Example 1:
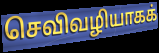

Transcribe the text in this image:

செவிவழியாகக்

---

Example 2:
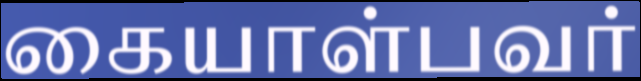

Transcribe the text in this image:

கையாள்பவர்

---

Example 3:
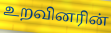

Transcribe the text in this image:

உறவினரின்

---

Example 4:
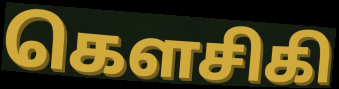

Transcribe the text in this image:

கௌசிகி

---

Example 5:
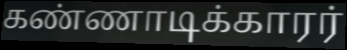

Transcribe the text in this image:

கண்ணாடிக்காரர்